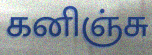
கனிஞ்சு